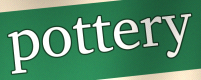
pottery